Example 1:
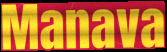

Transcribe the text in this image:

Manava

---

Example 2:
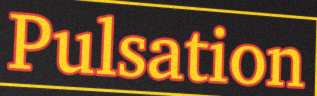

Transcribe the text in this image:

Pulsation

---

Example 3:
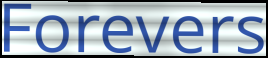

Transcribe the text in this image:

Forevers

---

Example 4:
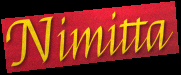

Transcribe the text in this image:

Nimitta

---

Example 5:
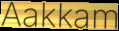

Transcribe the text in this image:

Aakkam